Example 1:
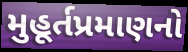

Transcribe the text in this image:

મુહૂર્તપ્રમાણનો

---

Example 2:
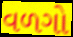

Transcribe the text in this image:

વળગો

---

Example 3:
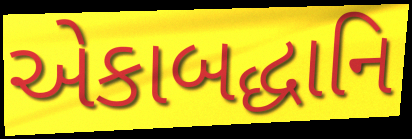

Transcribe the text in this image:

એકાબદ્ધાનિ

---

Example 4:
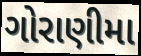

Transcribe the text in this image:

ગોરાણીમા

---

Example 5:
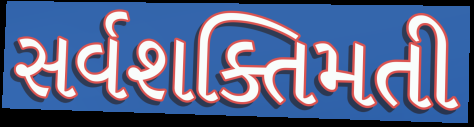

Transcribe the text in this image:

સર્વશક્તિમતી